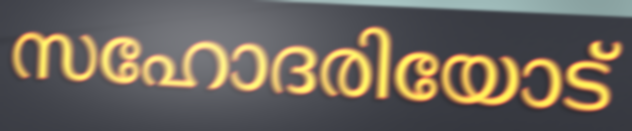
സഹോദരിയോട്